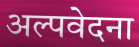
अल्पवेदना